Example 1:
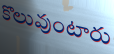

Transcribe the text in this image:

కొలువుంటారు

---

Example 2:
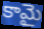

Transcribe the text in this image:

కామై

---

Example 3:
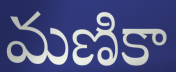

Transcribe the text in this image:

మణికా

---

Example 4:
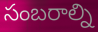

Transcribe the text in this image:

సంబరాల్ని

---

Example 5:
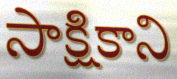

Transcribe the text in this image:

సాక్షికాని